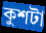
কুশটা